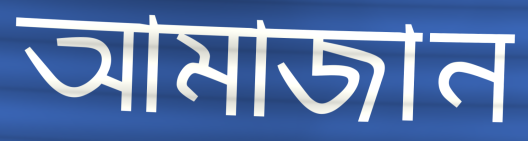
আমাজান